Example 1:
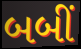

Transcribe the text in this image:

બબીં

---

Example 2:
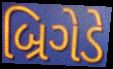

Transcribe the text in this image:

બ્રિગેડે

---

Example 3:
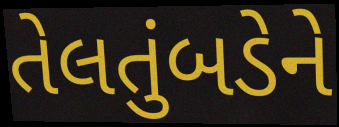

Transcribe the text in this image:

તેલતુંબડેને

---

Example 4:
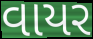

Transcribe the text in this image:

વાયર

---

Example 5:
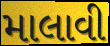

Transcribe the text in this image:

માલાવી